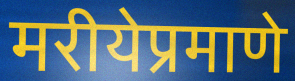
मरीयेप्रमाणे